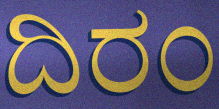
ದಿರಂ